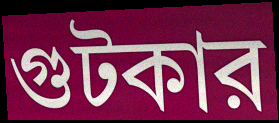
গুটকার